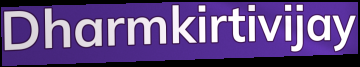
Dharmkirtivijay